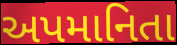
અપમાનિતા